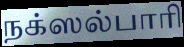
நக்ஸல்பாரி